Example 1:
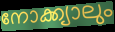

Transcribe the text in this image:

നോക്ക്യാലും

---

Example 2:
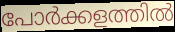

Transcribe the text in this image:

പോർക്കളത്തിൽ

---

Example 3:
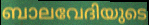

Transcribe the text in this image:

ബാലവേദിയുടെ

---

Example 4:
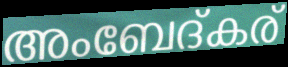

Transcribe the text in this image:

അംബേദ്കര്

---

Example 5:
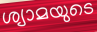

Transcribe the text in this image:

ശ്യാമയുടെ